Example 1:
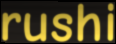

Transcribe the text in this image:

rushi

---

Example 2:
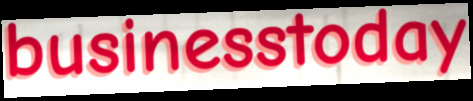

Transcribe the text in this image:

businesstoday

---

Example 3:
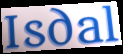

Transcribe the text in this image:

Isdal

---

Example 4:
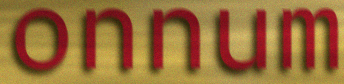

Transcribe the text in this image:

onnum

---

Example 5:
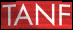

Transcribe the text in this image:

TANF